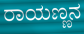
ರಾಯಣ್ಣನ